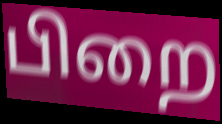
பிறை